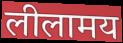
लीलामय